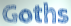
Goths